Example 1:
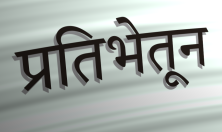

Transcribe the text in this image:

प्रतिभेतून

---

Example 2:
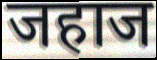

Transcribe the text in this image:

जहाज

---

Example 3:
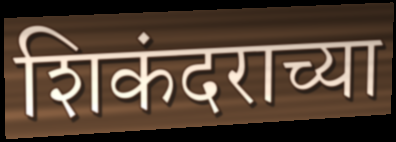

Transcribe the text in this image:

शिकंदराच्या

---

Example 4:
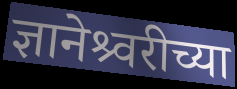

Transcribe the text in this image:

ज्ञानेश्र्वरीच्या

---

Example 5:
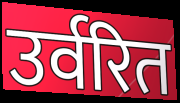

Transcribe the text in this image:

उर्वरित